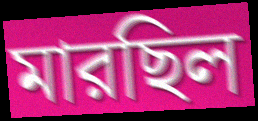
মারছিল